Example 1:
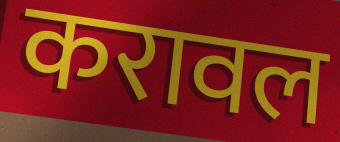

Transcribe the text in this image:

करावल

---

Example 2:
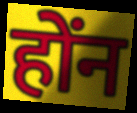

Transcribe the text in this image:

होंन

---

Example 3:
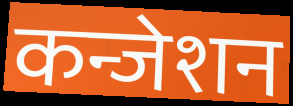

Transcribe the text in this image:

कन्जेशन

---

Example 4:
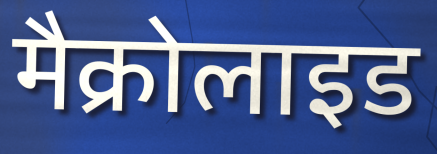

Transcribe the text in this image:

मैक्रोलाइड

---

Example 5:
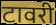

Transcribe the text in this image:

टावरी